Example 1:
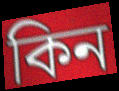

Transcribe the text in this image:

কিন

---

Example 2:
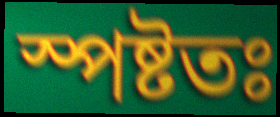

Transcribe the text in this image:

স্পষ্টতঃ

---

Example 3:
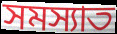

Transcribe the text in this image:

সমস্যাত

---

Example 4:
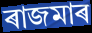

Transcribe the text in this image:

ৰাজমাৰ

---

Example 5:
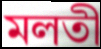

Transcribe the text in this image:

মলতী